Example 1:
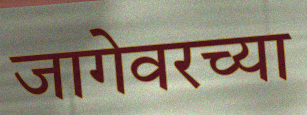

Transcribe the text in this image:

जागेवरच्या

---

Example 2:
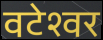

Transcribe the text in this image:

वटेश्वर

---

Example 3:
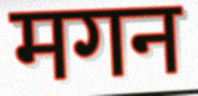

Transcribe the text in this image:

मगन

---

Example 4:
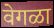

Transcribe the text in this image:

वेगळा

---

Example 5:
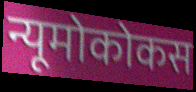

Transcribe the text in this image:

न्यूमोकोकस